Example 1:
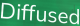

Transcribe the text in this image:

Diffused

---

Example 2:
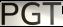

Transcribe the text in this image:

PGT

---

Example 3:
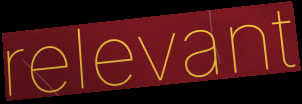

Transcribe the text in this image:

relevant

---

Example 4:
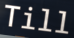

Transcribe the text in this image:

Till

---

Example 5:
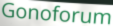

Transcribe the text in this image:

Gonoforum